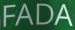
FADA